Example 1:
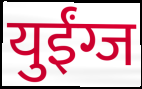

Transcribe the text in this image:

युईंग्ज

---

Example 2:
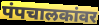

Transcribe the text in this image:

पंपचालकांवर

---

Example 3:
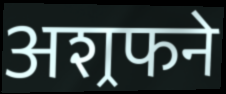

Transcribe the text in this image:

अश्रफने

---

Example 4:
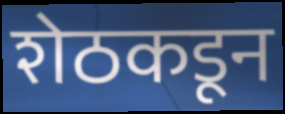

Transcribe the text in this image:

शेठकडून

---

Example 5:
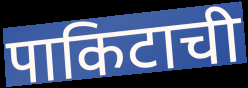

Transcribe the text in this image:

पाकिटाची